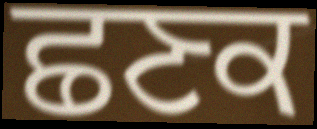
ਛਣਕ